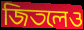
জিতলেও